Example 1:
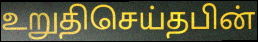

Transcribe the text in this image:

உறுதிசெய்தபின்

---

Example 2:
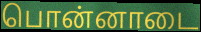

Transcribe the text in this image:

பொன்னாடை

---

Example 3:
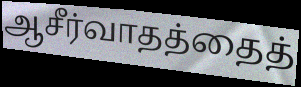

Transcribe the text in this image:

ஆசீர்வாதத்தைத்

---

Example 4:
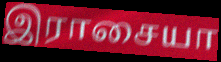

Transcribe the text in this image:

இராசையா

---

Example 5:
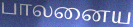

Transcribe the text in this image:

பாலனைய